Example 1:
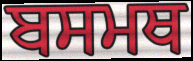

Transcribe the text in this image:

ਬਸਮਥ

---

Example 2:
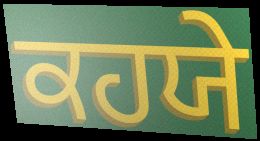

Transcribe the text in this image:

ਕਹਯੇ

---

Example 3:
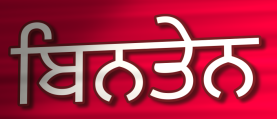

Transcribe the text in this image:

ਬਿਨਤੇਨ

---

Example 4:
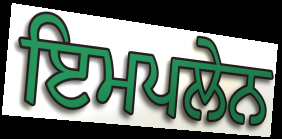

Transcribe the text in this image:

ਇਮਪਲੇਨ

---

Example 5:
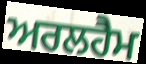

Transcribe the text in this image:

ਅਰਲਹੈਮ